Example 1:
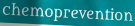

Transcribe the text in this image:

chemoprevention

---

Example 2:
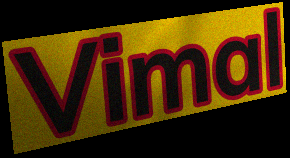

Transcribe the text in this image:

Vimal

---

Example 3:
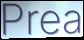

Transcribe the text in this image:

Prea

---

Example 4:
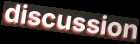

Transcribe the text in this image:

discussion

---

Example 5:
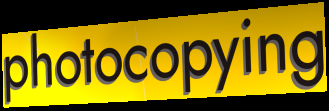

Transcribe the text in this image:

photocopying